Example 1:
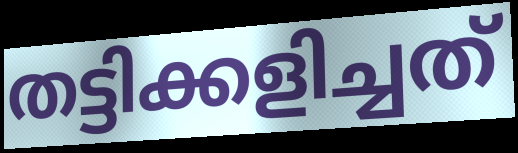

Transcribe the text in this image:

തട്ടിക്കളിച്ചത്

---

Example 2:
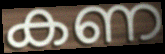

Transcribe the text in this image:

കണ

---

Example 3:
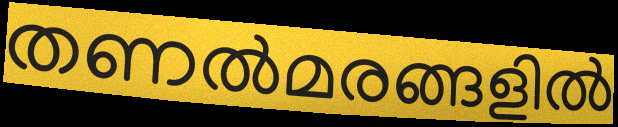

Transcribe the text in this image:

തണൽമരങ്ങളിൽ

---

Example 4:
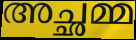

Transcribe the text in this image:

അച്ഛമ്മ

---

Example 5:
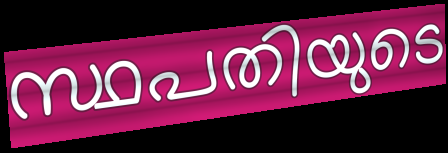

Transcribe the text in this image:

സ്ഥപതിയുടെ